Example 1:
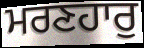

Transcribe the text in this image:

ਮਰਣਹਾਰੁ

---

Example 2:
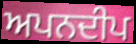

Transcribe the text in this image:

ਅਪਨਦੀਪ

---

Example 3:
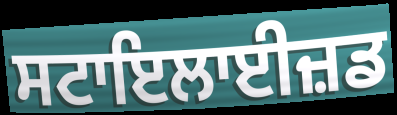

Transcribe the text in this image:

ਸਟਾਇਲਾਈਜ਼ਡ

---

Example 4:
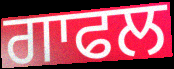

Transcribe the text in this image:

ਗਾਫਲ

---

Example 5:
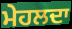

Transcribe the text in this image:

ਮੇਹਲਦਾ